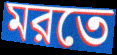
মরতে